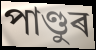
পাণ্ডুৰ